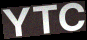
YTC